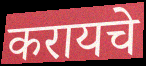
करायचे